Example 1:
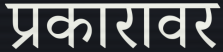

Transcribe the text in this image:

प्रकारावर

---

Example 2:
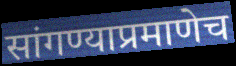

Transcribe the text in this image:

सांगण्याप्रमाणेच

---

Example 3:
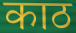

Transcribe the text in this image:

काठ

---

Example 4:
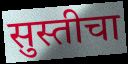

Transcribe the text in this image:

सुस्तीचा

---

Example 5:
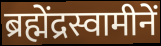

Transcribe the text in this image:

ब्रह्मेंद्रस्वामीनें